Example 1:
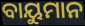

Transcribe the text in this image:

ବାୟୁମାନ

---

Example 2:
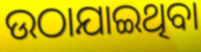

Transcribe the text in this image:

ଉଠାଯାଇଥିବା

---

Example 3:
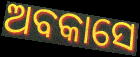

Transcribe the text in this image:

ଅବକାସେ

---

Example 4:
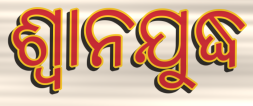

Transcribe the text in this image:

ଶ୍ଵାନଯୁଦ୍ଧ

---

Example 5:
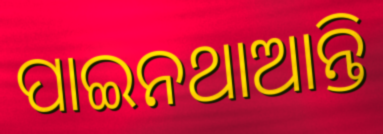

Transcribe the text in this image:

ପାଇନଥାଆନ୍ତି